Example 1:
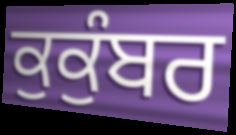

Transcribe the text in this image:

ਕੁਕੁੰਬਰ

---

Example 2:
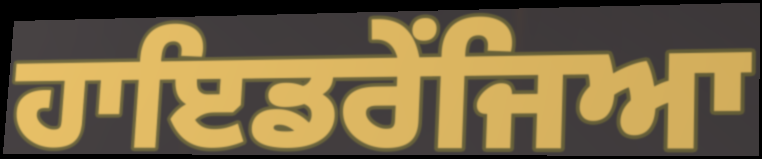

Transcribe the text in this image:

ਹਾਇਡਰੇਂਜਿਆ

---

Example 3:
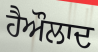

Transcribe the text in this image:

ਹੈਔਲਾਦ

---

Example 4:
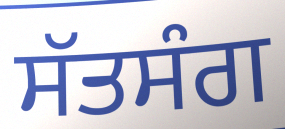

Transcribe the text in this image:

ਸੱਤਸੰਗ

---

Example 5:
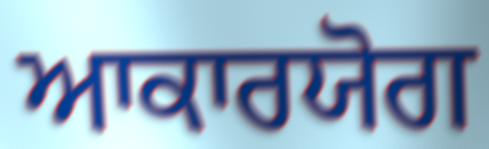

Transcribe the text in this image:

ਆਕਾਰਯੋਗ